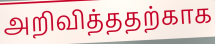
அறிவித்ததற்காக